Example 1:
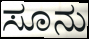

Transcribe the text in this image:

ಸೂನು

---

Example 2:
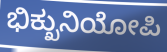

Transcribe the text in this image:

ಭಿಕ್ಖುನಿಯೋಪಿ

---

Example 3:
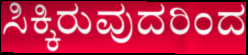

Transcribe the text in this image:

ಸಿಕ್ಕಿರುವುದರಿಂದ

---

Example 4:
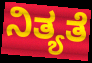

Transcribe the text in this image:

ನಿತ್ಯತೆ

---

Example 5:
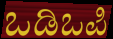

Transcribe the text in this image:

ಒಡಿಒಪಿ